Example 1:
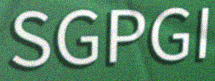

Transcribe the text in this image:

SGPGI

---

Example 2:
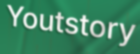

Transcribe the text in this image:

Youtstory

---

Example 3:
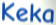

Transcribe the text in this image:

Keka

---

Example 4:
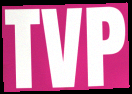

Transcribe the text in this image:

TVP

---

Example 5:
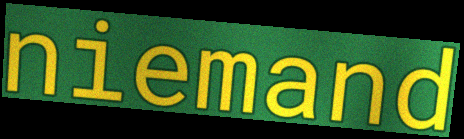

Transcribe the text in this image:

niemand